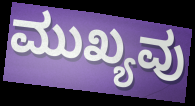
ಮುಖ್ಯವು